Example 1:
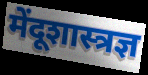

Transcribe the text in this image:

मेंदूशास्त्रज्ञ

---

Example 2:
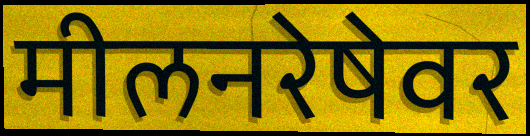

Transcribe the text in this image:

मीलनरेषेवर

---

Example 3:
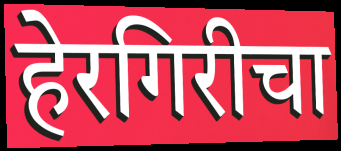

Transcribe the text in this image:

हेरगिरीचा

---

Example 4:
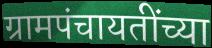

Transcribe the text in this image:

ग्रामपंचायतींच्या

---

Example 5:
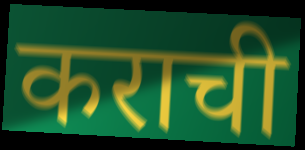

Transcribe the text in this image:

कराची